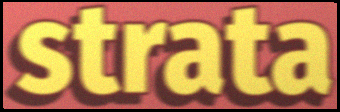
strata